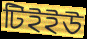
টিইইউ